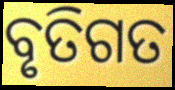
ବୃତିଗତ